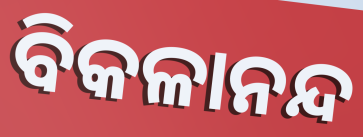
ବିକଳାନନ୍ଦ